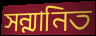
সন্মানিত